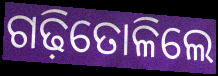
ଗଢ଼ିତୋଳିଲେ